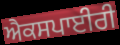
ਐਕਸਪਾਈਰੀ